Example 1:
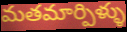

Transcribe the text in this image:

మతమార్పిళ్ళు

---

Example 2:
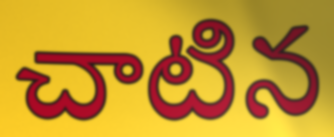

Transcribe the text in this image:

చాటిన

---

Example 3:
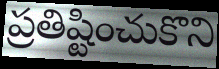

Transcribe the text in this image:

ప్రతిష్టించుకొని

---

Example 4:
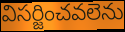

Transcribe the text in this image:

విసర్జించవలెను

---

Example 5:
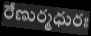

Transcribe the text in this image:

రేణుర్మధురః